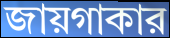
জায়গাকার